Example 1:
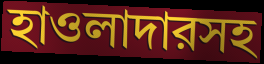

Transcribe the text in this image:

হাওলাদারসহ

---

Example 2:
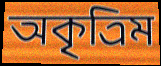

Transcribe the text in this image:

অকৃত্রিম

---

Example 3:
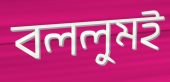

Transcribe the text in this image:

বললুমই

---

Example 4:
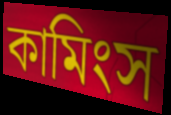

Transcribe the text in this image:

কামিংস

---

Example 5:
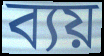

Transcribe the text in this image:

ব্যয়